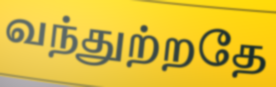
வந்துற்றதே